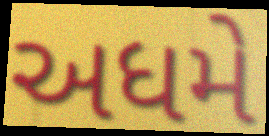
અધમે